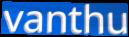
vanthu